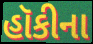
હૉકીના